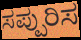
ಸಪ್ಪುರಿಸ